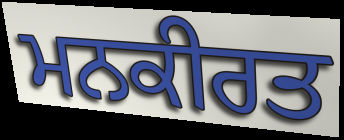
ਮਨਕੀਰਤ